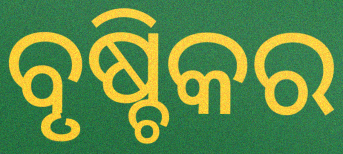
ବୃଷ୍ଚିକର